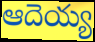
ఆదెయ్య